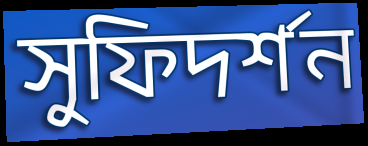
সুফিদর্শন